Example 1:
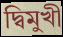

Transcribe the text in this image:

দ্বিমুখী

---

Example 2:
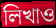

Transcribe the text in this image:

লিখাও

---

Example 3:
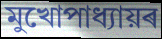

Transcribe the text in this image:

মুখোপাধ্যায়ৰ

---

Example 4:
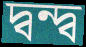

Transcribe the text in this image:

দ্বন্দ্ব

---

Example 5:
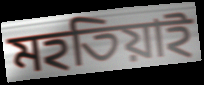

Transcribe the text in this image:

মহতিয়াই